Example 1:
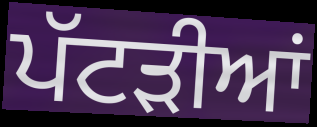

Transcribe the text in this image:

ਪੱਟੜੀਆਂ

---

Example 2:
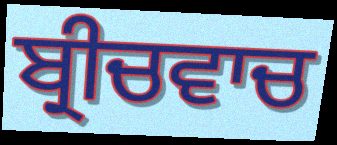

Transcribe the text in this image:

ਬ੍ਰੀਚਵਾਚ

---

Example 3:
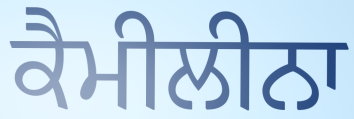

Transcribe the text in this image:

ਕੈਮੀਲੀਨਾ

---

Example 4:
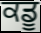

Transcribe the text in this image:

ਕਡੂ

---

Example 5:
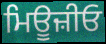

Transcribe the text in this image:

ਮਿਊਜ਼ੀਓ